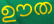
ഊത